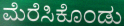
ಮೆರೆಸಿಕೊಂಡು